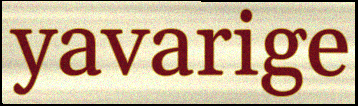
yavarige